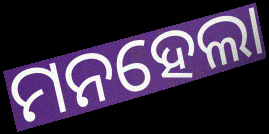
ମନହେଲା